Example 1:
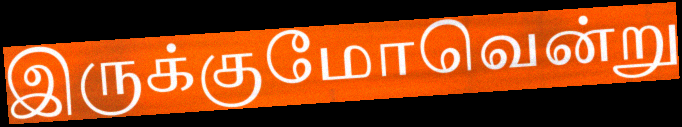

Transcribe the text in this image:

இருக்குமோவென்று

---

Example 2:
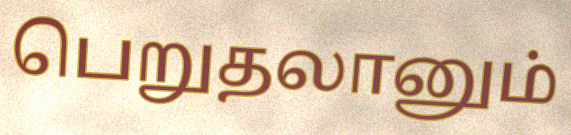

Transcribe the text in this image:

பெறுதலானும்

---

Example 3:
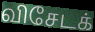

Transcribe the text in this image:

விசேடக்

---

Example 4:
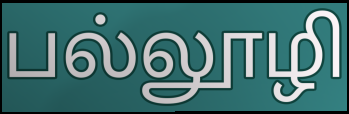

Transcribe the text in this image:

பல்லூழி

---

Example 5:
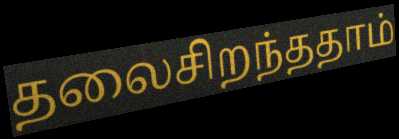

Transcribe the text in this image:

தலைசிறந்ததாம்